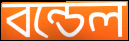
বন্ডেল